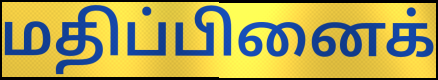
மதிப்பினைக்